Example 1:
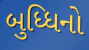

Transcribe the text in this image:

બુધ્ધિનો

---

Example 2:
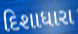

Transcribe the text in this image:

દિશાધારા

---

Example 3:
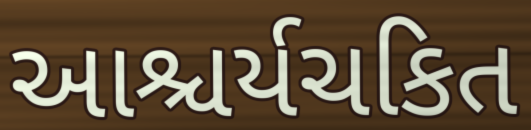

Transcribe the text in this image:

આશ્ચર્યચકિત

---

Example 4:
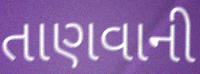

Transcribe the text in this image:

તાણવાની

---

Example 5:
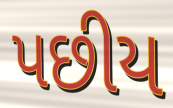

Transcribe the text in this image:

પછીય